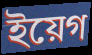
ইয়েগ